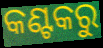
କଣ୍ଟକରୁ